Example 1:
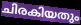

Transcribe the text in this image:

ചിരകിയതും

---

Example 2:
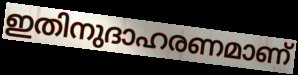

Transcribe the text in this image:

ഇതിനുദാഹരണമാണ്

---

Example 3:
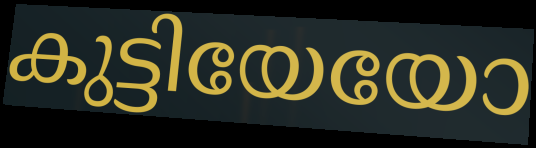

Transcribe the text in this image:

കുട്ടിയേയോ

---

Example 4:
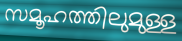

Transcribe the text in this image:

സമൂഹത്തിലുമുള്ള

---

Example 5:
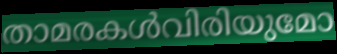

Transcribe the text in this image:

താമരകൾവിരിയുമോ